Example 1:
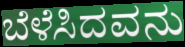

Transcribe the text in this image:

ಬೆಳೆಸಿದವನು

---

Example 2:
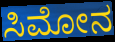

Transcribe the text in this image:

ಸಿಮೋನ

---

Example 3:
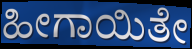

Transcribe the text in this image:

ಹೀಗಾಯಿತೇ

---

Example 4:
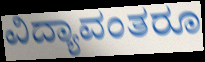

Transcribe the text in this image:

ವಿದ್ಯಾವಂತರೂ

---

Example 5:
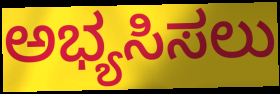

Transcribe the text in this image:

ಅಭ್ಯಸಿಸಲು